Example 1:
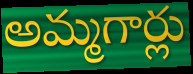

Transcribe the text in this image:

అమ్మగార్లు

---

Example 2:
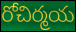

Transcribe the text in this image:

రోచిర్మయ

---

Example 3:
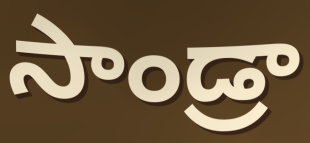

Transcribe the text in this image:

సాండ్రా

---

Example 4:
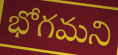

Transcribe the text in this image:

భోగమని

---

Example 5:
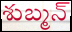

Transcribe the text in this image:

శుబ్మన్